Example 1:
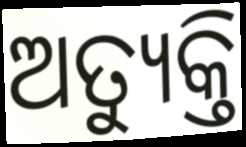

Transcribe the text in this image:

ଅତ୍ୟୁକ୍ତି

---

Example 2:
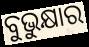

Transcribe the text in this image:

ବୁଭୁକ୍ଷାର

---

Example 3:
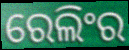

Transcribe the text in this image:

ରେଲିଂର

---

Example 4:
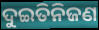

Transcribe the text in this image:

ଦୁଇତିନିଜଣ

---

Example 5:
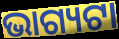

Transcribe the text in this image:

ଭାଗ୍ୟଟା